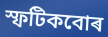
স্ফটিকবোৰ